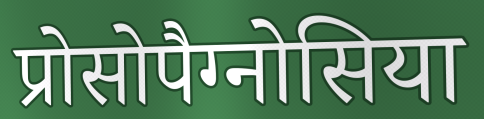
प्रोसोपैग्नोसिया